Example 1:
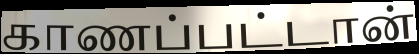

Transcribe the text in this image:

காணப்பட்டான்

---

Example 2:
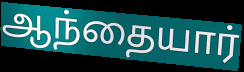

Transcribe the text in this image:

ஆந்தையார்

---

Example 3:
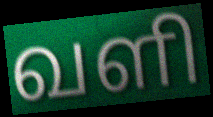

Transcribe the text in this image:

வளி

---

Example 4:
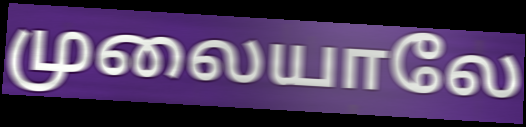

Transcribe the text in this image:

முலையாலே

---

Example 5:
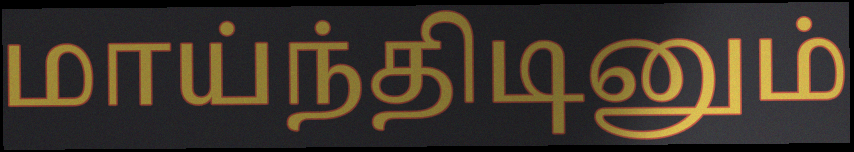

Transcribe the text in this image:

மாய்ந்திடினும்